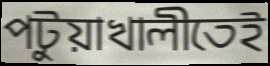
পটুয়াখালীতেই